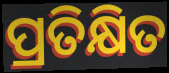
ପ୍ରତିକ୍ଷିତ